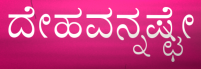
ದೇಹವನ್ನಷ್ಟೇ